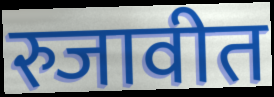
रुजावीत